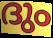
ദും